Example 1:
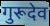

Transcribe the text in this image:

गुरूदेव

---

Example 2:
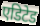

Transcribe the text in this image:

एडिटेड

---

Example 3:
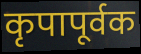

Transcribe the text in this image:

कृपापूर्वक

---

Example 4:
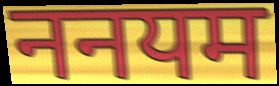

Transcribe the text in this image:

ननयम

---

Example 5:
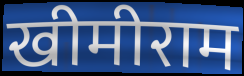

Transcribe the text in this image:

खीमीराम